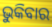
ଭୁକିବାର